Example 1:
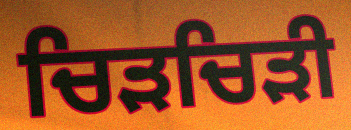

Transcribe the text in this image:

ਚਿੜਚਿੜੀ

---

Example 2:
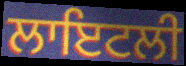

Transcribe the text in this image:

ਲਾਇਟਲੀ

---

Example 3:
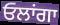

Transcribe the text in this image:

ਓਲਾਂਗਾ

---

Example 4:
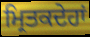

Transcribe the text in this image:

ਮ੍ਰਿਤਕਦੇਹਾਂ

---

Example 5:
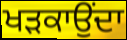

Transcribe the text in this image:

ਖੜਕਾਉਂਦਾ